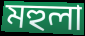
মহুলা